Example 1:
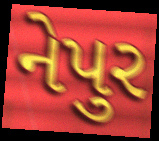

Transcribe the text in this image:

નેપુર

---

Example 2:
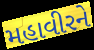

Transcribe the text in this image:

મહાવીરને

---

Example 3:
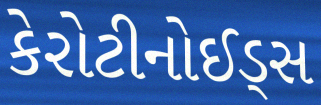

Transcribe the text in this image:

કેરોટીનોઈડ્સ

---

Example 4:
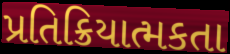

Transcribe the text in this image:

પ્રતિક્રિયાત્મકતા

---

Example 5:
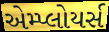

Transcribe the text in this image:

એમ્પ્લોયર્સ